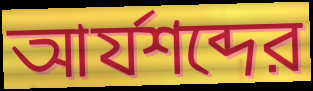
আর্যশব্দের